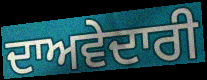
ਦਾਅਵੇਦਾਰੀ